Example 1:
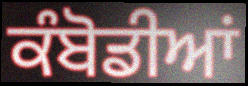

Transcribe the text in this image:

ਕੰਬੋਡੀਆਂ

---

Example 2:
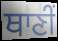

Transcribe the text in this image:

ਥਾਣੀਂ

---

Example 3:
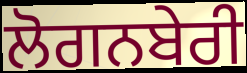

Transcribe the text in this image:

ਲੋਗਨਬੇਰੀ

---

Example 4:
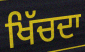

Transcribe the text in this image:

ਖਿੱਚਦਾ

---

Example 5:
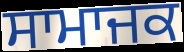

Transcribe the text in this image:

ਸਾਮਾਜਕ